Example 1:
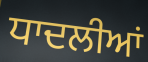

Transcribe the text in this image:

ਧਾਦਲੀਆਂ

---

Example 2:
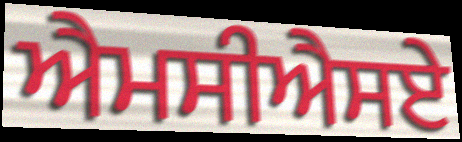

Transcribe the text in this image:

ਐਮਸੀਐਸਏ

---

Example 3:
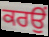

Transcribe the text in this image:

ਕਰਉਂ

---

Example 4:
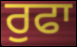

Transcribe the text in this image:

ਰੁਫਾ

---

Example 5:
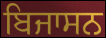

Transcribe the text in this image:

ਬਿਜਾਸਨ